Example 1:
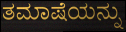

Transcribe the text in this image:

ತಮಾಷೆಯನ್ನು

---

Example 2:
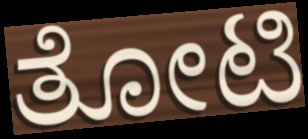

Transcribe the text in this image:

ತೋಟಿ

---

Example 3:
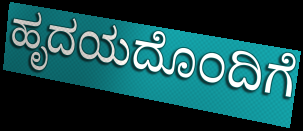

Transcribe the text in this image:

ಹೃದಯದೊಂದಿಗೆ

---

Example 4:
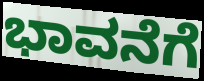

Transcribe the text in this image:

ಭಾವನೆಗೆ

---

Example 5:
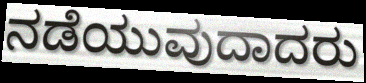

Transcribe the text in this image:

ನಡೆಯುವುದಾದರು